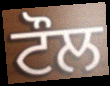
ਟੌਲ